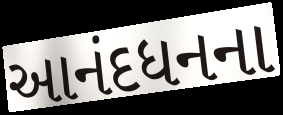
આનંદધનના